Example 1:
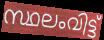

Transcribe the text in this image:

സ്ഥലംവിട്ട്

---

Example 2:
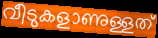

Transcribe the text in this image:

വീടുകളാണുള്ളത്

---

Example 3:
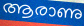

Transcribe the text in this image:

ആരാണു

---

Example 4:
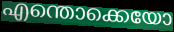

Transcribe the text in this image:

എന്തൊക്കെയോ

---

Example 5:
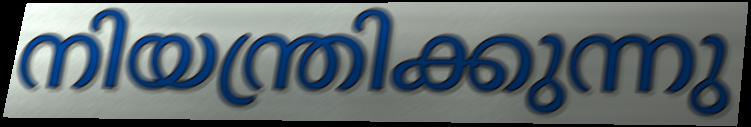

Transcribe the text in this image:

നിയന്ത്രിക്കുന്നു